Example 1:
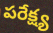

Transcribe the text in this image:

పరేక్ష్య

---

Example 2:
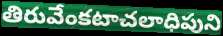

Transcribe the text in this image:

తిరువేంకటాచలాధిపుని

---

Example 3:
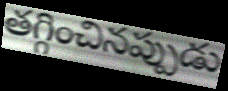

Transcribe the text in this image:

తగ్గించినప్పుడు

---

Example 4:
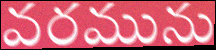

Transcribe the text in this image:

వరమును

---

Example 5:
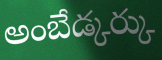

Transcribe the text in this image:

అంబేడ్కర్కు